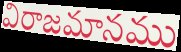
విరాజమానము